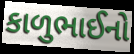
કાળુભાઈનો